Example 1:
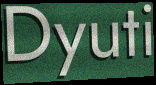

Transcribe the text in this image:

Dyuti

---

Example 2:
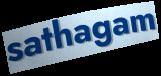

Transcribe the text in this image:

sathagam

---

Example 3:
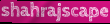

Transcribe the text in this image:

shahrajscape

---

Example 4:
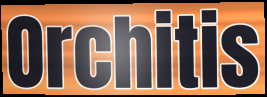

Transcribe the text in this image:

Orchitis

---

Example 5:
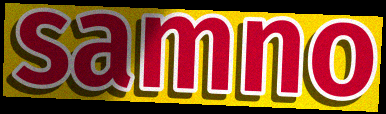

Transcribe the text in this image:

samno